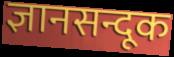
ज्ञानसन्दूक